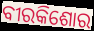
ବୀରକିଶୋର